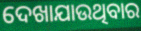
ଦେଖାଯାଉଥିବାର